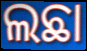
ଲଛା